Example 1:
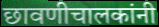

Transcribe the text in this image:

छावणीचालकांनी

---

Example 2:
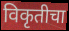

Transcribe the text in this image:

विकृतीचा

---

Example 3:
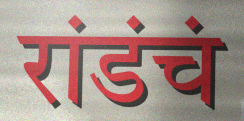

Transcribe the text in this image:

रांडंचं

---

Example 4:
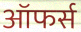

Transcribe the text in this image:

ऑफर्स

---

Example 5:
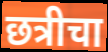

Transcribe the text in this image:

छत्रीचा